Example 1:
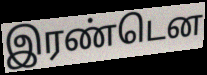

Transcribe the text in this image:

இரண்டென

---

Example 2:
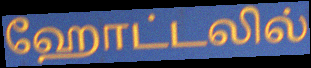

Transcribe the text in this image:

ஹோட்டலில்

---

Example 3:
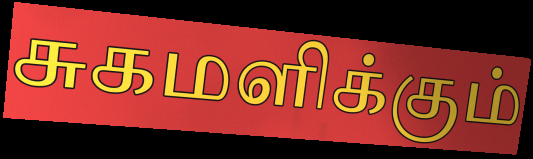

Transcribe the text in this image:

சுகமளிக்கும்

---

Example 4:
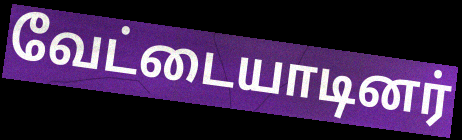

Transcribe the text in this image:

வேட்டையாடினர்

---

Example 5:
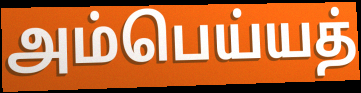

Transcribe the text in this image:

அம்பெய்யத்